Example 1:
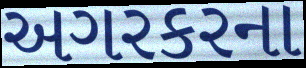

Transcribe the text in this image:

અગરકરના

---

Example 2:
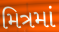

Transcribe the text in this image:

મિત્રમાં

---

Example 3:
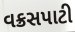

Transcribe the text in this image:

વક્રસપાટી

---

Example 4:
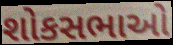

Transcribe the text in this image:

શોકસભાઓ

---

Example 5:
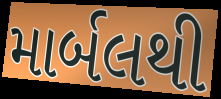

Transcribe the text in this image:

માર્બલથી